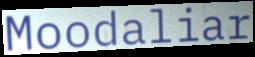
Moodaliar